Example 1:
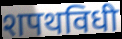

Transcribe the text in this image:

शपथविधी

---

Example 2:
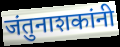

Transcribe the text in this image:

जंतुनाशकांनी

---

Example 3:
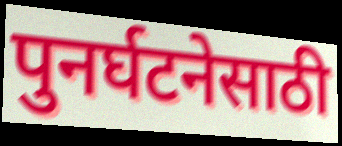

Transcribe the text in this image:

पुनर्घटनेसाठी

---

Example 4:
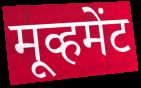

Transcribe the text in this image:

मूव्हमेंट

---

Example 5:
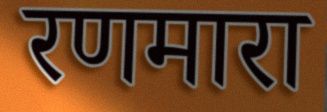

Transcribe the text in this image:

रणमारा